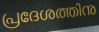
പ്രദേശത്തിനു